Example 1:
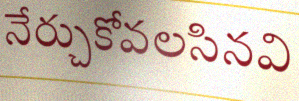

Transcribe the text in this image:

నేర్చుకోవలసినవి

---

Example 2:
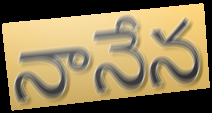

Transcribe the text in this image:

నానేన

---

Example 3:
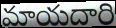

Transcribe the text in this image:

మాయదారి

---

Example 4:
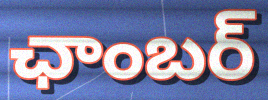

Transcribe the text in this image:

ఛాంబర్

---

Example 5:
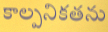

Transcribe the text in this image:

కాల్పనికతను